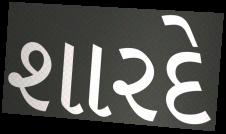
શારદે